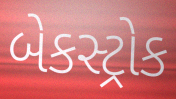
બેકસ્ટ્રોક